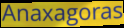
Anaxagoras